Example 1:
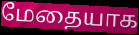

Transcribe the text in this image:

மேதையாக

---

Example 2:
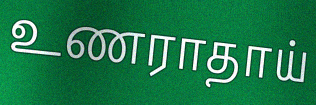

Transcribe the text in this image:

உணராதாய்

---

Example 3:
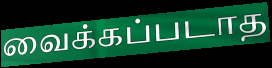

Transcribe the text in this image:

வைக்கப்படாத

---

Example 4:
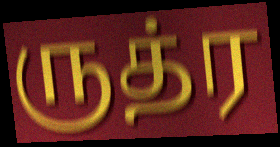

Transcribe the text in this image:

ருத்ர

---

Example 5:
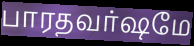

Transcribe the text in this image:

பாரதவர்ஷமே